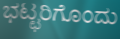
ಭಟ್ಟರಿಗೊಂದು